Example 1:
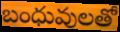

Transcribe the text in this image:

బంధువులతో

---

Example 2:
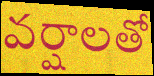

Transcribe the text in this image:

వర్షాలతో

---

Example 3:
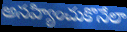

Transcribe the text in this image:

అసహ్యించుకొనేలా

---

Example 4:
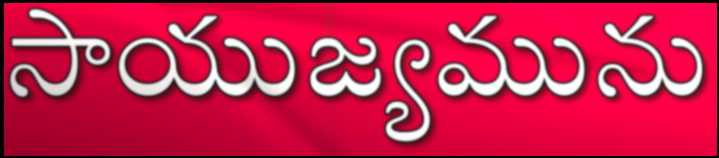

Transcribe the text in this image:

సాయుజ్యమును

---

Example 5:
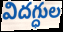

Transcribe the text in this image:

విదగ్ధుల